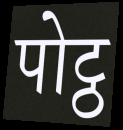
पोट्ठ